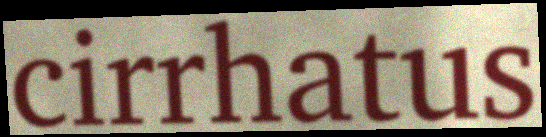
cirrhatus